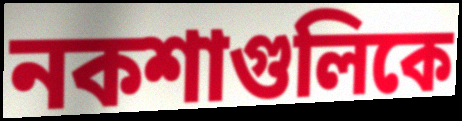
নকশাগুলিকে